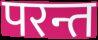
परन्त